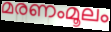
മരണംമൂലം